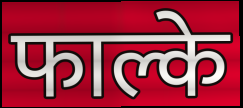
फाल्के